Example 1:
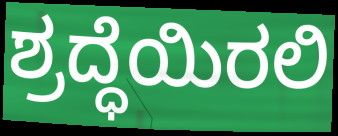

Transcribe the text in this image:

ಶ್ರದ್ಧೆಯಿರಲಿ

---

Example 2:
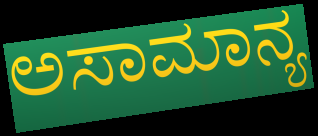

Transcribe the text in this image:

ಅಸಾಮಾನ್ಯ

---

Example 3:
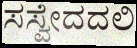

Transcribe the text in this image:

ಸಸ್ವೇದದಲಿ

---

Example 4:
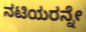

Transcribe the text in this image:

ನಟಿಯರನ್ನೇ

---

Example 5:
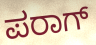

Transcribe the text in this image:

ಪರಾಗ್